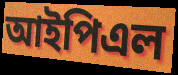
আইপিএল